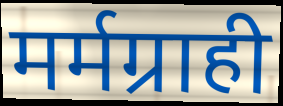
मर्मग्राही